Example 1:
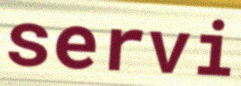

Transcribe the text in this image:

servi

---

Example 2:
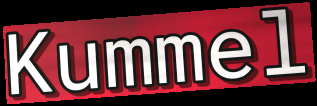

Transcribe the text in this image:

Kummel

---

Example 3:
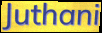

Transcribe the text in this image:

Juthani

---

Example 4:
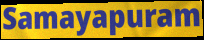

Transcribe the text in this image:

Samayapuram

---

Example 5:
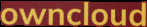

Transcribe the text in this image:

owncloud